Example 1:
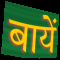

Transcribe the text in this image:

बायें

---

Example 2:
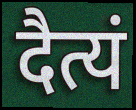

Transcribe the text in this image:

दैत्यं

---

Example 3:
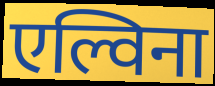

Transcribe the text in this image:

एल्विना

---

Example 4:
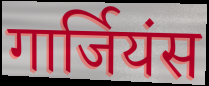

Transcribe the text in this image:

गार्जियंस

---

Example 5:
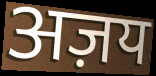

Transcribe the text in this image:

अज़य